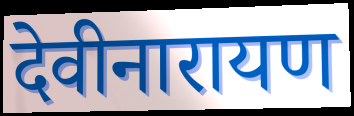
देवीनारायण